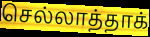
செல்லாத்தாக்